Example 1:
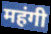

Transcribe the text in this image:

महंगी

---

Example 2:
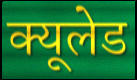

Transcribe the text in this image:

क्यूलेड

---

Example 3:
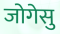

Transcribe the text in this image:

जोगेसु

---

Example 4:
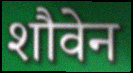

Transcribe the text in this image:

शौवेन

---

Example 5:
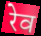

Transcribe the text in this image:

रेव